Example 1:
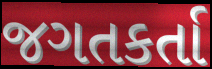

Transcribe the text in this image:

જગતકર્તા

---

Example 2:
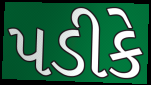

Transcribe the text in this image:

પડીકે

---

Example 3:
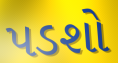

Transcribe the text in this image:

પડશો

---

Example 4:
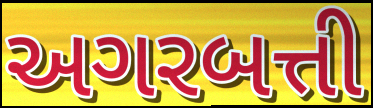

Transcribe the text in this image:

અગરબત્તી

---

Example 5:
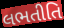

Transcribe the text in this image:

લભતીતિ